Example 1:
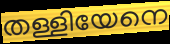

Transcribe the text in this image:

തള്ളിയേനെ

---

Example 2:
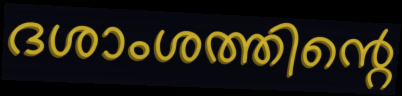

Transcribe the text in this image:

ദശാംശത്തിന്റെ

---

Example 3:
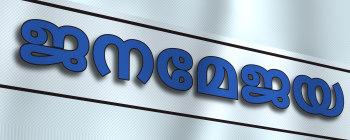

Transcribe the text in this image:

ജനമേജയ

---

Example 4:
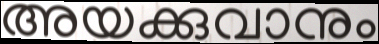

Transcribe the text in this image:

അയക്കുവാനും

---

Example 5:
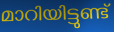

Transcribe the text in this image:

മാറിയിട്ടുണ്ട്